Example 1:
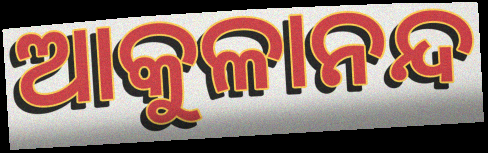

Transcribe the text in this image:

ଆକୁଳାନନ୍ଦ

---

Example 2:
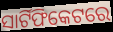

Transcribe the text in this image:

ସାର୍ଟିଫିକେଟରେ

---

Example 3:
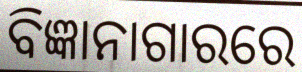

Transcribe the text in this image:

ବିଜ୍ଞାନାଗାରରେ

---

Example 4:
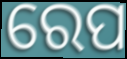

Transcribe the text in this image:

ରେପ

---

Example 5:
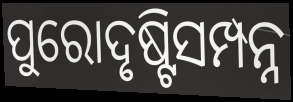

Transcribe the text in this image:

ପୁରୋଦୃଷ୍ଟିସମ୍ପନ୍ନ